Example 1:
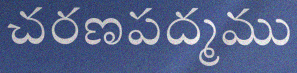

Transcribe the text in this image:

చరణపద్మము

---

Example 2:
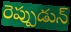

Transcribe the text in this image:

రెప్పుడున్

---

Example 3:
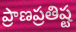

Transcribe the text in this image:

ప్రాణప్రతిష్ట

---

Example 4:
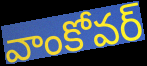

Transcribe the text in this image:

వాంకోవర్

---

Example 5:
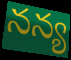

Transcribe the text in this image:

నన్య